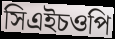
সিএইচওপি